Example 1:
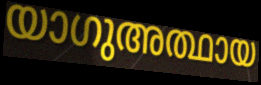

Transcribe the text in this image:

യാഗുഅത്ഥായ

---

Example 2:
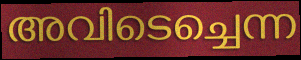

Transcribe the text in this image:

അവിടെച്ചെന്ന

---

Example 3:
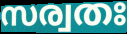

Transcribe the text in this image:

സര്വതഃ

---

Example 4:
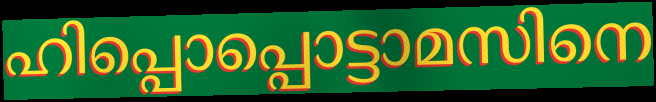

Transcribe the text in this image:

ഹിപ്പൊപ്പൊട്ടാമസിനെ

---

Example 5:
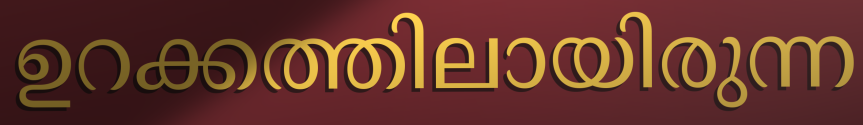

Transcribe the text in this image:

ഉറക്കത്തിലായിരുന്ന